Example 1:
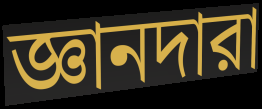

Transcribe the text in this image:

জ্ঞানদারা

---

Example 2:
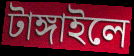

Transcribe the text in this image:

টাঙ্গাইলে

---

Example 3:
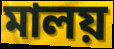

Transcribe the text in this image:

মালয়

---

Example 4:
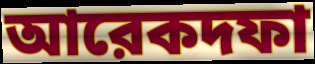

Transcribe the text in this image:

আরেকদফা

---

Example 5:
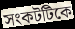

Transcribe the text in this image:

সংকটটিকে